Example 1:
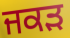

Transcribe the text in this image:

ਜਕਡ਼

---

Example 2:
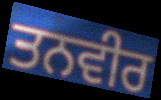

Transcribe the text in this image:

ਤਨਵੀਰ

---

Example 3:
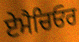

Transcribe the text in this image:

ਏਮੈਚਿਓਰ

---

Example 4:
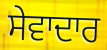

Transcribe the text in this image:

ਸੇਵਾਦਾਰ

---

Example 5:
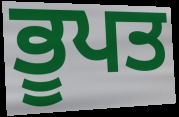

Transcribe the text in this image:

ਭੂਪਤ